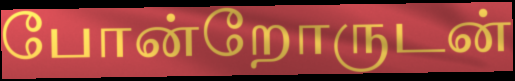
போன்றோருடன்